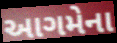
આગમેના